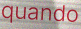
quando